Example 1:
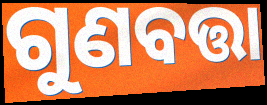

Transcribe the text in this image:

ଗୁଣବତ୍ତା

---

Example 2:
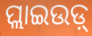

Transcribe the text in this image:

ପ୍ଲାଇଉଡ଼୍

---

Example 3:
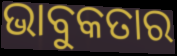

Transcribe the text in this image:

ଭାବୁକତାର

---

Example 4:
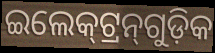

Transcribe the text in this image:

ଇଲେକ୍‍ଟ୍ରନ୍‍ଗୁଡ଼ିକ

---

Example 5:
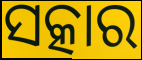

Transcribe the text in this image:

ସତ୍କାର